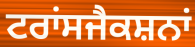
ਟਰਾਂਸਜੈਕਸ਼ਨਾਂ